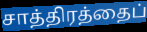
சாத்திரத்தைப்